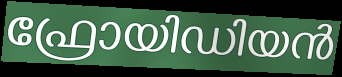
ഫ്രോയിഡിയൻ